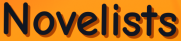
Novelists